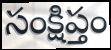
సంక్షిప్తం